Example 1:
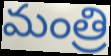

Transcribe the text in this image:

మంత్రి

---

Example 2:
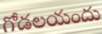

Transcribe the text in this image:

గోడలయందు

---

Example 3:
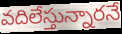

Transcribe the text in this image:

వదిలేస్తున్నారనే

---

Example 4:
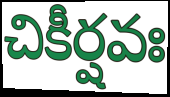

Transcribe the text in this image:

చికీర్షవః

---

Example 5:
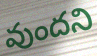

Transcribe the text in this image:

వుందని